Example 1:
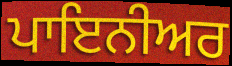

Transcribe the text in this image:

ਪਾਇਨੀਅਰ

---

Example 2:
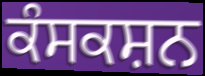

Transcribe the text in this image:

ਕੰਸਕਸ਼ਨ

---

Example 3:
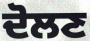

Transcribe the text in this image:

ਦੋਲਣ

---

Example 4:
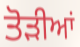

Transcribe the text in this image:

ਤੋਡ਼ੀਆਂ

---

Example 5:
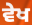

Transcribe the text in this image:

ਵੇਖ